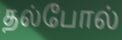
தல்போல்